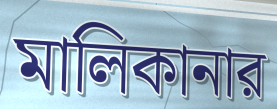
মালিকানার